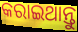
କରାଇଥାନ୍ତୁ